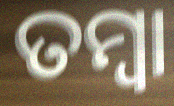
ତମ୍ୱା